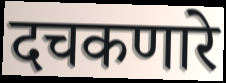
दचकणारे